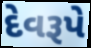
દેવરૂપે